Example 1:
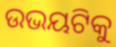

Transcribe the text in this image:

ଉଭୟଟିକୁ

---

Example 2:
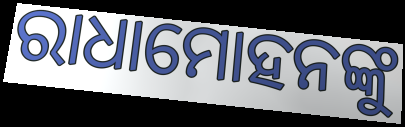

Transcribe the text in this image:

ରାଧାମୋହନଙ୍କୁ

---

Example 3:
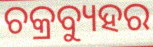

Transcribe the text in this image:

ଚକ୍ରବ୍ୟୁହର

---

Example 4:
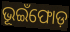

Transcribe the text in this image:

ଭୂଇଁଫୋଡ଼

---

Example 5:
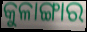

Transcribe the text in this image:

କୁଳାଙ୍ଗାର